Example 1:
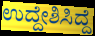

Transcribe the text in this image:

ಉದ್ದೇಶಿಸಿದ್ದೆ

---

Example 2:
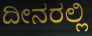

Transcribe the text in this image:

ದೀನರಲ್ಲಿ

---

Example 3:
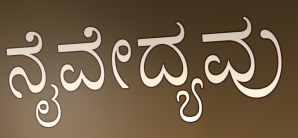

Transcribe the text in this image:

ನೈವೇದ್ಯವು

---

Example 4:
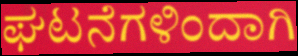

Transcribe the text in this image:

ಘಟನೆಗಳಿಂದಾಗಿ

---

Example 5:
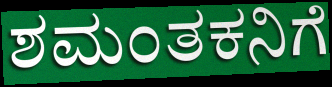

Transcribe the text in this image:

ಶಮಂತಕನಿಗೆ